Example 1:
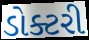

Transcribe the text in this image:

ડોક્ટરી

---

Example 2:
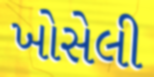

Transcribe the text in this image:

ખોસેલી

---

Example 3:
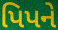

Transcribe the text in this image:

પિપને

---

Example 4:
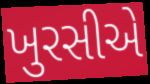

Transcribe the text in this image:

ખુરસીએ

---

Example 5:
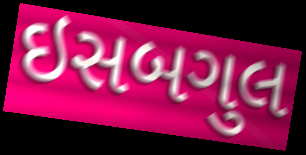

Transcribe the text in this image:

ઇસબગુલ